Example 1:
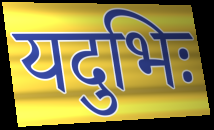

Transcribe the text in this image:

यदुभिः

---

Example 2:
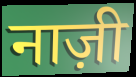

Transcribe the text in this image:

नाज़ी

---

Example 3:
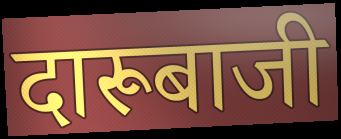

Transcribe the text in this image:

दारूबाजी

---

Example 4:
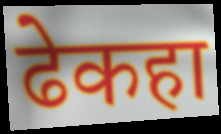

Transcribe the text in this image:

ढेकहा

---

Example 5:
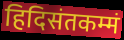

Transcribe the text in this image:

हिदिसंतकम्मं